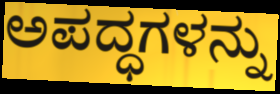
ಅಪದ್ಧಗಳನ್ನು